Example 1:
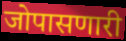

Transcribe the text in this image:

जोपासणारी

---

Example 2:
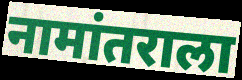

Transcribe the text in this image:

नामांतराला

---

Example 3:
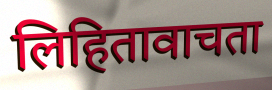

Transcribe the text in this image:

लिहितावाचता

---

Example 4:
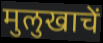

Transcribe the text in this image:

मुलुखाचें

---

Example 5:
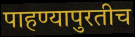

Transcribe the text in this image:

पाहण्यापुरतीच